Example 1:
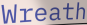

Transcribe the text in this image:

Wreath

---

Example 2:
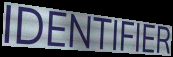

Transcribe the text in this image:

IDENTIFIER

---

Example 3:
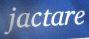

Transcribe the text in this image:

jactare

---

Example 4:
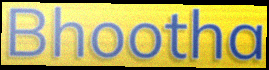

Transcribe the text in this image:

Bhootha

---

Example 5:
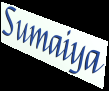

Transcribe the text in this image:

Sumaiya